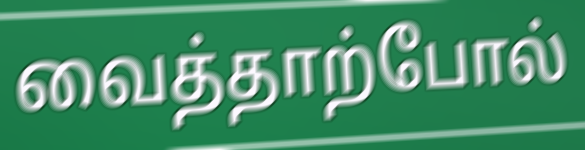
வைத்தாற்போல்